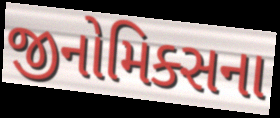
જીનોમિક્સના